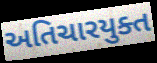
અતિચારયુક્ત